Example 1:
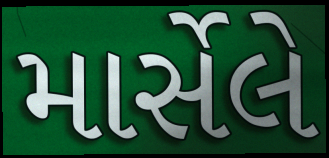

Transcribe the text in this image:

માર્સેલે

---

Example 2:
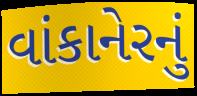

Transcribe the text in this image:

વાંકાનેરનું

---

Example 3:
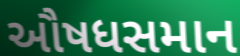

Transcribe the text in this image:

ઔષધસમાન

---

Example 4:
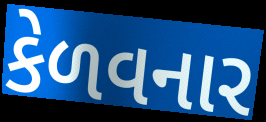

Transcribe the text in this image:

કેળવનાર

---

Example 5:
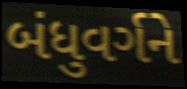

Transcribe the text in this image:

બંધુવર્ગને